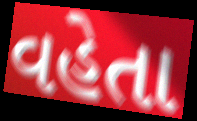
વહેતા